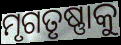
ମୃଗତୃଷ୍ଣାକୁ